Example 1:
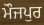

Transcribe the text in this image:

ਮੌਜਪੁਰ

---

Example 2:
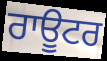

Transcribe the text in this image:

ਰਾਊਟਰ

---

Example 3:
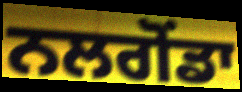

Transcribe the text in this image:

ਨਲਗੋਂਡਾ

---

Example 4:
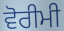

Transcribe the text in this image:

ਵੋਰੀਮੀ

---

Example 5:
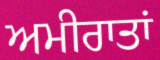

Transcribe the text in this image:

ਅਮੀਰਾਤਾਂ